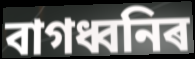
বাগধ্বনিৰ